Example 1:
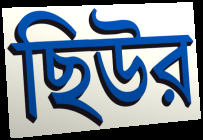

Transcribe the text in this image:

ছিউর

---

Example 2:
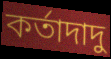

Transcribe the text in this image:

কর্তাদাদু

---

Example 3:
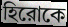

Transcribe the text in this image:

হিরোকে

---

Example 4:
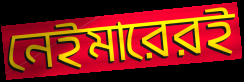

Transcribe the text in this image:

নেইমারেরই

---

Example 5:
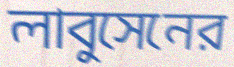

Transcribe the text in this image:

লাবুসেনের